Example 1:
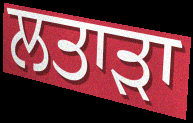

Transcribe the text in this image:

ਲਤਾੜਾ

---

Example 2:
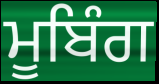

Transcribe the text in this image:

ਮੂਬਿੰਗ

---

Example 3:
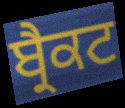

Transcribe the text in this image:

ਬ੍ਰੈਕਟ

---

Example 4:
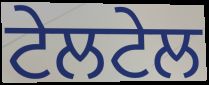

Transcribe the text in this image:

ਟੇਲਟੇਲ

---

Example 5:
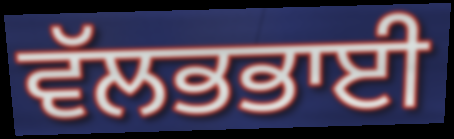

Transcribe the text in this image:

ਵੱਲਭਭਾਈ